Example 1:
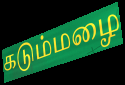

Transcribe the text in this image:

கடும்மழை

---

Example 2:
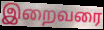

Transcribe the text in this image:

இறைவரை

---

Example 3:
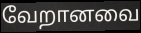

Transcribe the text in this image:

வேறானவை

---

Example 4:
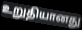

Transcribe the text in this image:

உறுதியானது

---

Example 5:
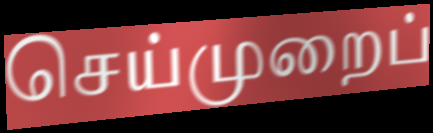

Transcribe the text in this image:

செய்முறைப்